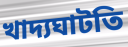
খাদ্যঘাটতি